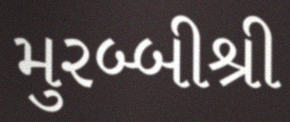
મુરબ્બીશ્રી